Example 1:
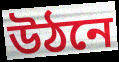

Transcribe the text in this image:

উঠনে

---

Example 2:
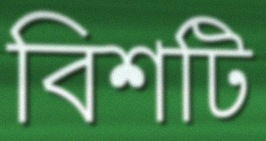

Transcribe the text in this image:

বিশটি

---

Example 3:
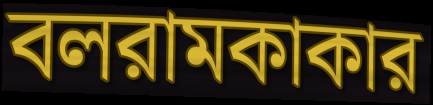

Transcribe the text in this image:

বলরামকাকার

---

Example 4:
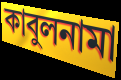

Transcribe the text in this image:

কাবুলনামা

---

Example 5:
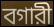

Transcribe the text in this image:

বগারী